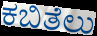
ಕಬಿತೆಲು